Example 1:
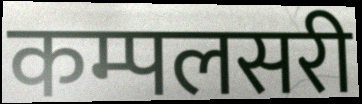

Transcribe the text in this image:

कम्पलसरी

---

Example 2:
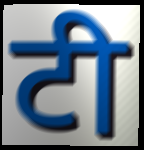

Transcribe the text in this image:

टी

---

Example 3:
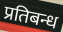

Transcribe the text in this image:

प्रतिबन्ध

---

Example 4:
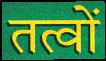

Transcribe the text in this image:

तत्वों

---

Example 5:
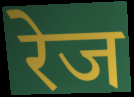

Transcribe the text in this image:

रेज